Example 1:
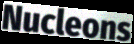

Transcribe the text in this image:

Nucleons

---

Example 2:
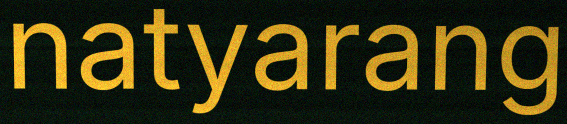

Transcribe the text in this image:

natyarang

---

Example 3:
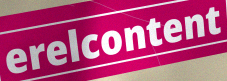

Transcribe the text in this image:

erelcontent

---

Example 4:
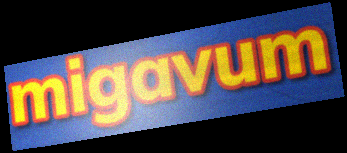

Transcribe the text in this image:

migavum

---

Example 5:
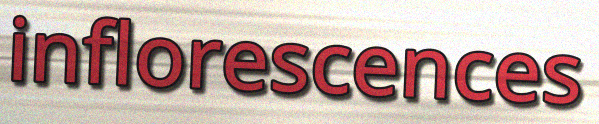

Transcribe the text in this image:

inflorescences